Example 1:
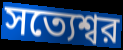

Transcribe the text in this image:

সত্যেশ্বর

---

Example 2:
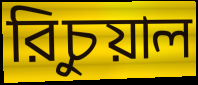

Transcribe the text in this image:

রিচুয়াল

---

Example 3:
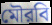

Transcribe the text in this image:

মৌরবি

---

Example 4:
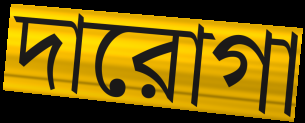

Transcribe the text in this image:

দারোগা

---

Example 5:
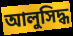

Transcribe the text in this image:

আলুসিদ্ধ